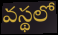
వస్థలో